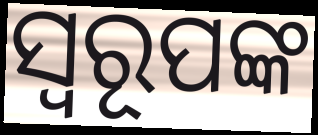
ସ୍ୱରୂପଙ୍କ